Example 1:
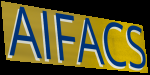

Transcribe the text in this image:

AIFACS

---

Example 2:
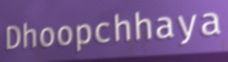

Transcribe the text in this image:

Dhoopchhaya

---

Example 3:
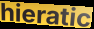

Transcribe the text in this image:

hieratic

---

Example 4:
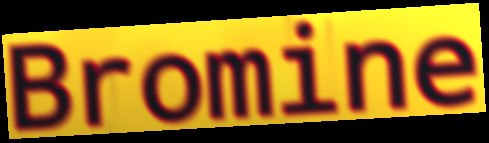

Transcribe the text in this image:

Bromine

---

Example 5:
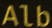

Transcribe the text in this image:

Alb